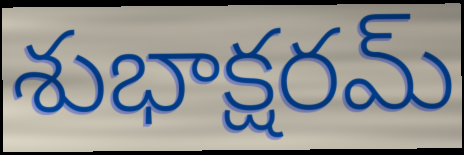
శుభాక్షరమ్